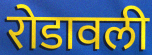
रोडावली